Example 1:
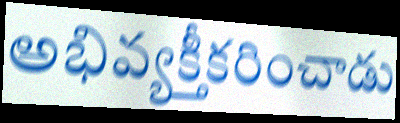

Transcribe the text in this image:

అభివ్యక్తీకరించాడు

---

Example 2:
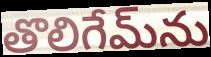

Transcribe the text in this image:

తొలిగేమ్‌ను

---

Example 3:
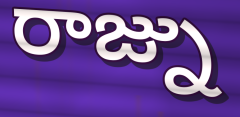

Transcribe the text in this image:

రాజ్ను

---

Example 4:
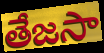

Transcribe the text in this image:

తేజసా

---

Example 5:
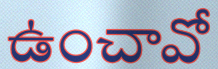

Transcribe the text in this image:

ఉంచావో